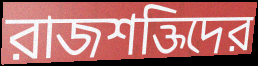
রাজশক্তিদের